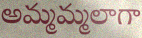
అమ్మమ్మలాగా